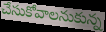
చేసుకోవాలనుకున్న